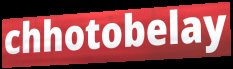
chhotobelay